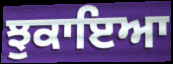
ਝੁਕਾਇਆ